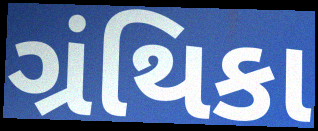
ગ્રંથિકા